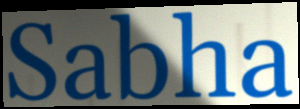
Sabha